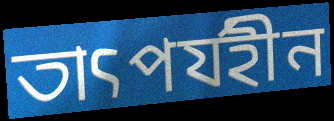
তাৎপর্যহীন